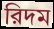
রিদম